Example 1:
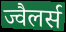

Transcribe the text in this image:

ज्वैलर्स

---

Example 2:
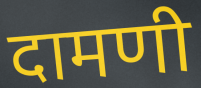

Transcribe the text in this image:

दामणी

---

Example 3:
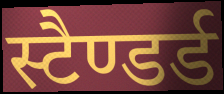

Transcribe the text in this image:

स्टैण्डर्ड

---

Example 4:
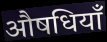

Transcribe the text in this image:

औषधियाँ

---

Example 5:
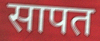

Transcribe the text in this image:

सापत